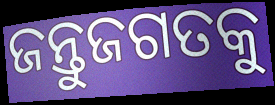
ଜନ୍ତୁଜଗତକୁ